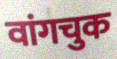
वांगचुक